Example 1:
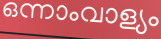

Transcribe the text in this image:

ഒന്നാംവാള്യം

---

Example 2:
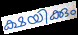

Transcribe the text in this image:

ക്ഷയിക്കും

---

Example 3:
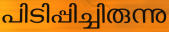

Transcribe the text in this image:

പിടിപ്പിച്ചിരുന്നു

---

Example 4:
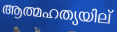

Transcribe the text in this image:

ആത്മഹത്യയില്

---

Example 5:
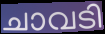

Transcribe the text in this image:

ചാവടി